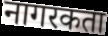
नागरकता